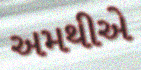
અમથીએ